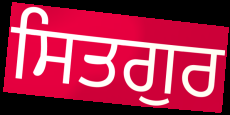
ਸਿਤਗੁਰ